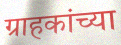
ग्राहकांच्या